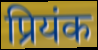
प्रियंक